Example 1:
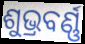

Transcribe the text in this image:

ଶୁଭ୍ରବର୍ଣ୍ଣ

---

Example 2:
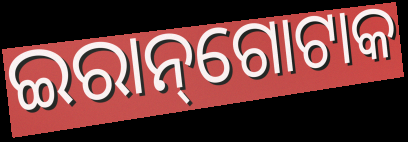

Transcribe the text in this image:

ଇରାନ୍‌ଗୋଟାକ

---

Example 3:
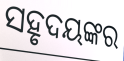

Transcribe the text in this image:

ସହୃଦୟଙ୍କର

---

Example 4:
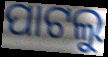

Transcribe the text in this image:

ପାଟଲୁ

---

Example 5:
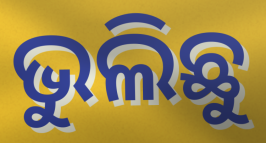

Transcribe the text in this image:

ଭୁଲିଛୁ